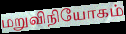
மறுவிநியோகம்